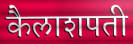
कैलाशपती